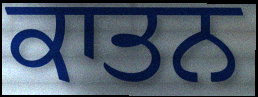
ਕਾਤਨ